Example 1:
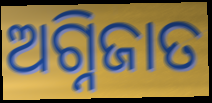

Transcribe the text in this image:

ଅଗ୍ନିଜାତ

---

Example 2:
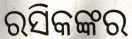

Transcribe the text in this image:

ରସିକଙ୍କର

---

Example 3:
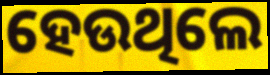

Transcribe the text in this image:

ହେଉଥିଲେ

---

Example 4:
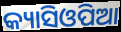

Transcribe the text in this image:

କ୍ୟାସିଓପିଆ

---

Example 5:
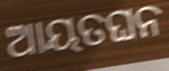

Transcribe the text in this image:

ଆୟତଘନ